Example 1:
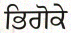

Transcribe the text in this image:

ਭਿਗੋਕੇ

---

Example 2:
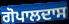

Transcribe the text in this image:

ਗੋਪਾਲਦਾਸ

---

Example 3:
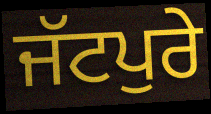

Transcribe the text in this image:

ਜੱਟਪੁਰੇ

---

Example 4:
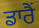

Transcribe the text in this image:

ਡਾਰੈਂ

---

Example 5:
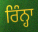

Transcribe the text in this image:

ਰਿੰਨ੍ਹਾ